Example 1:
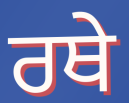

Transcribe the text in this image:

ਰਥੇ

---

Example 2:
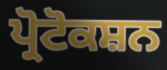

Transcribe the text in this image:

ਪ੍ਰੋਟੋਕਸ਼ਨ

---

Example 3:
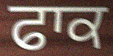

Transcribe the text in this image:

ਫਾਕ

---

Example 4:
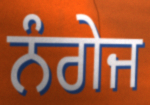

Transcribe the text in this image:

ਨੰਗੇਜ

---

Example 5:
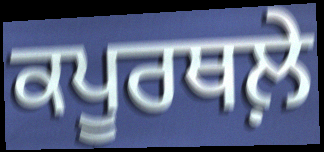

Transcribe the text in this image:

ਕਪੂਰਥਲ਼ੇ